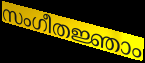
സംഗീതജ്ഞാം